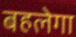
बहलेगा